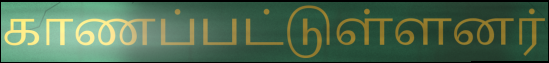
காணப்பட்டுள்ளனர்